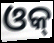
ଓକ୍